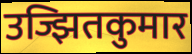
उज्झितकुमार